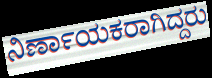
ನಿರ್ಣಾಯಕರಾಗಿದ್ದರು